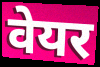
वेयर